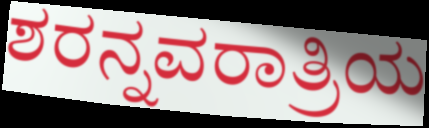
ಶರನ್ನವರಾತ್ರಿಯ